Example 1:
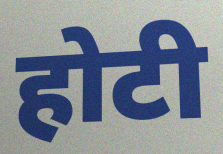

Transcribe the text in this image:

होटी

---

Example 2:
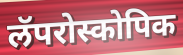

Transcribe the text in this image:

लॅपरोस्कोपिक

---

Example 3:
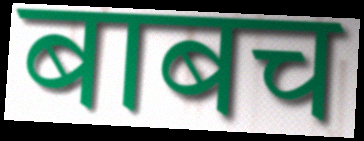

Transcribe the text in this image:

बाबच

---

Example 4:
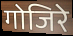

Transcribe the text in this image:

गोजिरे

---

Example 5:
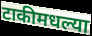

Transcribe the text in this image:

टाकीमधल्या